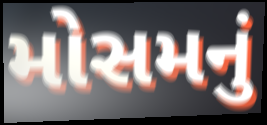
મોસમનું